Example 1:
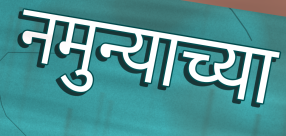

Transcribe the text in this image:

नमुन्याच्या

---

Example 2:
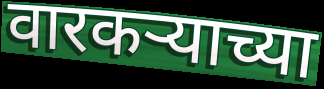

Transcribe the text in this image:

वारकऱ्याच्या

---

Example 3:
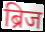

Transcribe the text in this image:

ब्रिज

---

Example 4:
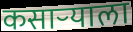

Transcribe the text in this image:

कसाऱ्याला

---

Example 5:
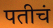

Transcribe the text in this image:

पतीचं